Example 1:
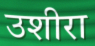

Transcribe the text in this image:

उशीरा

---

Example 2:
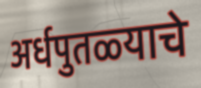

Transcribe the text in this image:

अर्धपुतळ्याचे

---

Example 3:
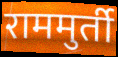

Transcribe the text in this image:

राममुर्ती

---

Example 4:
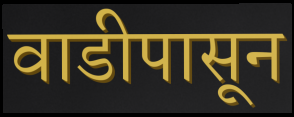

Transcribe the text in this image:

वाडीपासून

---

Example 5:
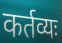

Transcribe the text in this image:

कर्तव्यः